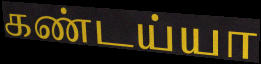
கண்டய்யா